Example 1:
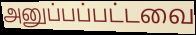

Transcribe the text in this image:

அனுப்பப்பட்டவை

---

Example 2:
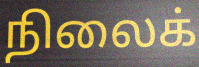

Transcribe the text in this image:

நிலைக்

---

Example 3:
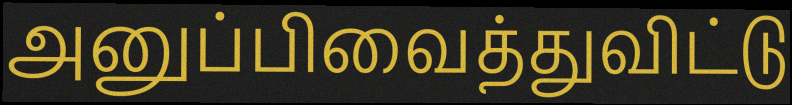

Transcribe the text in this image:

அனுப்பிவைத்துவிட்டு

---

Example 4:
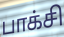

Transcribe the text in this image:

பாக்சி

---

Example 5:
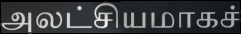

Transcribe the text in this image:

அலட்சியமாகச்